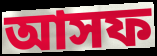
আসফ